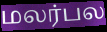
மலர்பல